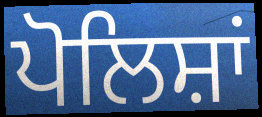
ਪੋਲਿਸ਼ਾਂ